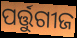
ପର୍ତ୍ତୁଗୀଜ